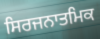
ਸਿਰਜਨਾਤਮਿਕ